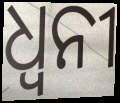
ଧ୍ୱନୀ